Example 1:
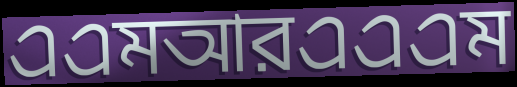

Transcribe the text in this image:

এএমআরএএএম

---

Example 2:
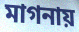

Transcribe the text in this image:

মাগনায়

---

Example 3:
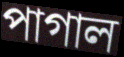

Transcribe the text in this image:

পাগাল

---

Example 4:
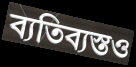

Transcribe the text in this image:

ব্যতিব্যস্তও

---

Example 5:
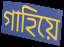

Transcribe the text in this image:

গাহিয়ে